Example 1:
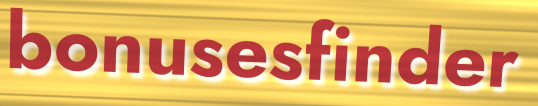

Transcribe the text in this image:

bonusesfinder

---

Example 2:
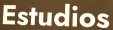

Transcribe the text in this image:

Estudios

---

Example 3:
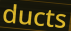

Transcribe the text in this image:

ducts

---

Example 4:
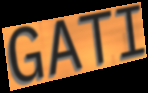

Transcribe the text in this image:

GATI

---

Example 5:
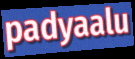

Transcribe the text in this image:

padyaalu